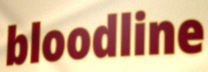
bloodline